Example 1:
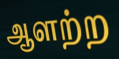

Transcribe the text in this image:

ஆளற்ற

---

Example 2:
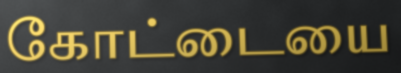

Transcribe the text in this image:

கோட்டையை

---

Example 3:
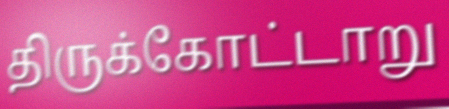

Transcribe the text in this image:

திருக்கோட்டாறு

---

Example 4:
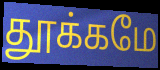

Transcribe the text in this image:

தூக்கமே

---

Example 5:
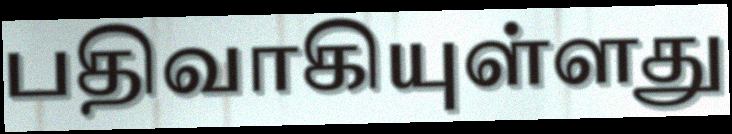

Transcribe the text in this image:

பதிவாகியுள்ளது